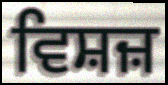
ਵਿਸ਼ਜ਼